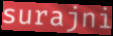
surajni